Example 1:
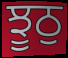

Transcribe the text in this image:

ਝੂਠੁ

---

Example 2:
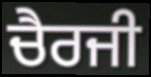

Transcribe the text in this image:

ਚੈਰਜੀ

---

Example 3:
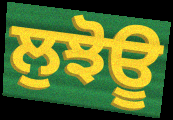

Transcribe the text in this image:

ਲੁਝੋਊ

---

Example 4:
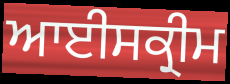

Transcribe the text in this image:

ਆਈਸਕ੍ਰੀਮ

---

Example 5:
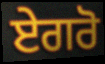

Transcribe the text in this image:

ਏਗਰੋ